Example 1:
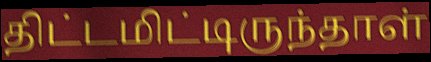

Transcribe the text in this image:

திட்டமிட்டிருந்தாள்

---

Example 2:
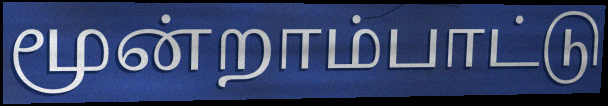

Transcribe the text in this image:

மூன்றாம்பாட்டு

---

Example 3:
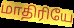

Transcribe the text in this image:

மாதிரியே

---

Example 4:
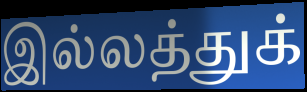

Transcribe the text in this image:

இல்லத்துக்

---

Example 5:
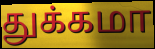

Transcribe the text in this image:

துக்கமா